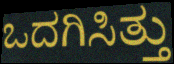
ಒದಗಿಸಿತ್ತು